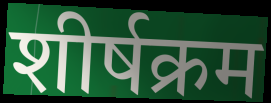
शीर्षक्रम